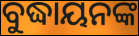
ବୁଦ୍ଧାୟନଙ୍କ